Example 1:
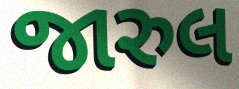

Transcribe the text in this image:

જારુલ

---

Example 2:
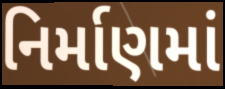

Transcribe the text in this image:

નિર્માણમાં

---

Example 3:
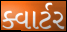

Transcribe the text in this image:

ક્વાર્ટર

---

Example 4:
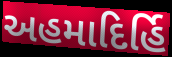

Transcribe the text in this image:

અહમાદિર્હિ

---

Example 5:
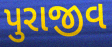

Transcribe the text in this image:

પુરાજીવ